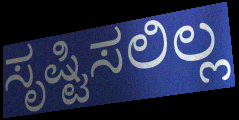
ಸೃಷ್ಟಿಸಲಿಲ್ಲ